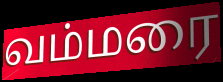
வம்மரை